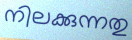
നിലക്കുന്നതു